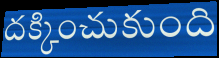
దక్కించుకుంది